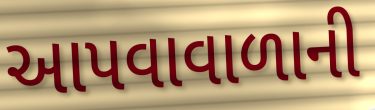
આપવાવાળાની